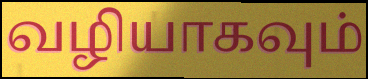
வழியாகவும்